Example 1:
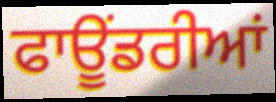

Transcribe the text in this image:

ਫਾਊਂਡਰੀਆਂ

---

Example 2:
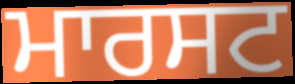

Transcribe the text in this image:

ਮਾਰਸਟ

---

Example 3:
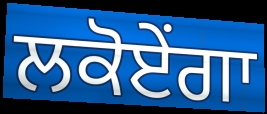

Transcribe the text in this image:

ਲਕੋਏਂਗਾ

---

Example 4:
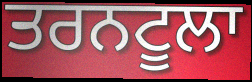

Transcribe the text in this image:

ਤਰਨਟੂਲਾ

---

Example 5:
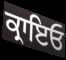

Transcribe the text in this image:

ਕ੍ਰਾਇਓ